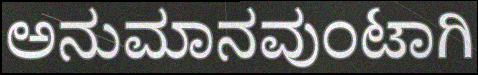
ಅನುಮಾನವುಂಟಾಗಿ